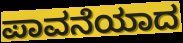
ಪಾವನೆಯಾದ